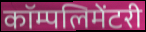
कॉम्पलिमेंटरी